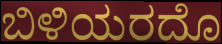
ಬಿಳಿಯರದೊ